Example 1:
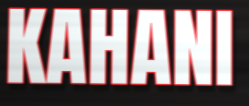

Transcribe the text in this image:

KAHANI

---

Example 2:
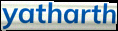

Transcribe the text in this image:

yatharth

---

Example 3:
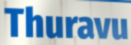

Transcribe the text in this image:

Thuravu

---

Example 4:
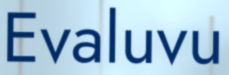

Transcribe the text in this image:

Evaluvu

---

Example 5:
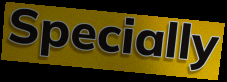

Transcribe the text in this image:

Specially